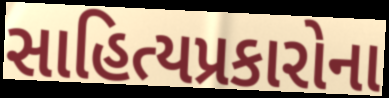
સાહિત્યપ્રકારોના